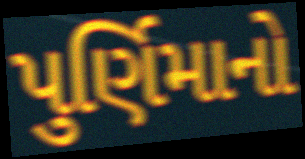
પુર્ણિમાનો